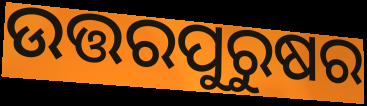
ଉତ୍ତରପୁରୁଷର